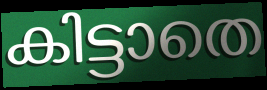
കിട്ടാതെ